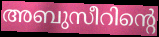
അബുസീറിന്റെ